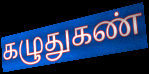
கழுதுகண்